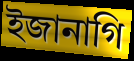
ইজানাগি